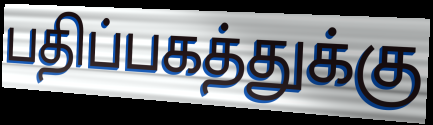
பதிப்பகத்துக்கு